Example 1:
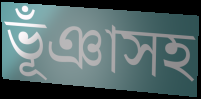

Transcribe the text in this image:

ভূঁঞাসহ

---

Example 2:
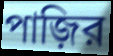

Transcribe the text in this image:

পাজ়ির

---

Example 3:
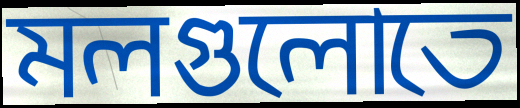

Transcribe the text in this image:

মলগুলোতে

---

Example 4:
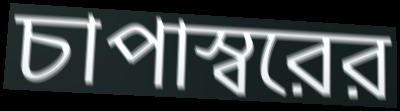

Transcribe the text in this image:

চাপাস্বরের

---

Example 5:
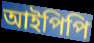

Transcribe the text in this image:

আইপিপি